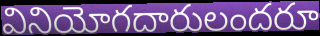
వినియోగదారులందరూ